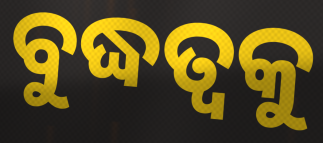
ବୁଦ୍ଧତ୍ଵକୁ